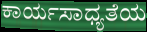
ಕಾರ್ಯಸಾಧ್ಯತೆಯ